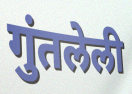
गुंतलेली